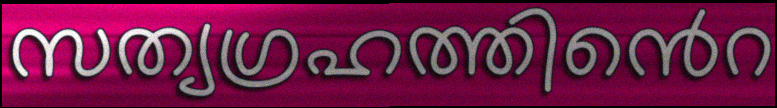
സത്യഗ്രഹത്തിൻെറ